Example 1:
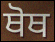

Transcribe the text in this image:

ਥੋਥ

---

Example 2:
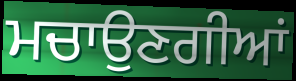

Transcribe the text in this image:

ਮਚਾਉਣਗੀਆਂ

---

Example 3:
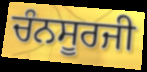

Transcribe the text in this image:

ਚੰਨਸੂਰਜੀ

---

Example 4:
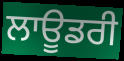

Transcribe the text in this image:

ਲਾਊਡਰੀ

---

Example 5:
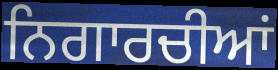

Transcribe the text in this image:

ਨਿਗਾਰਚੀਆਂ